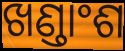
ଖଣ୍ଡାଂଶ